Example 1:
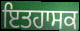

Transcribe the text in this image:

ਇਤਹਾਸਕ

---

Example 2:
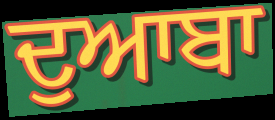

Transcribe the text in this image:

ਦੁਆਬਾ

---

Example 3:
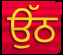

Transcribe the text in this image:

ਉੱਠ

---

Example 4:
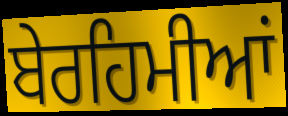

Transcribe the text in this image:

ਬੇਰਹਿਮੀਆਂ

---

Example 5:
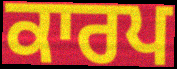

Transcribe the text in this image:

ਕਾਰਪ